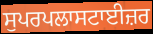
ਸੁਪਰਪਲਾਸਟਾਈਜ਼ਰ